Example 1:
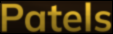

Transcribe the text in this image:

Patels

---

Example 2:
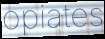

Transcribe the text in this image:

opiates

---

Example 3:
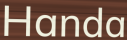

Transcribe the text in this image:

Handa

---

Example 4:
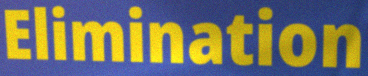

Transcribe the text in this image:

Elimination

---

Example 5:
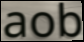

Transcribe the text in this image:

aob